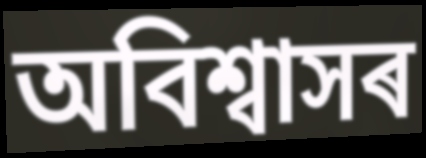
অবিশ্বাসৰ